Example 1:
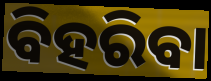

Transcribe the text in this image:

ବିହରିବା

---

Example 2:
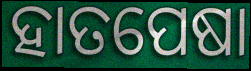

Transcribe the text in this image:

ହାତପେଷା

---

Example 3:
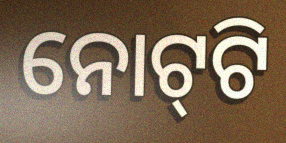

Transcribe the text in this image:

ନୋଟ୍‌ଟି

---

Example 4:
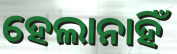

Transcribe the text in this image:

ହେଲାନାହିଁ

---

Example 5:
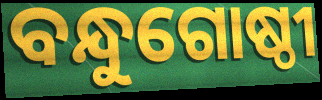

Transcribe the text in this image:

ବନ୍ଧୁଗୋଷ୍ଠୀ